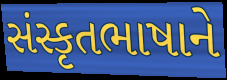
સંસ્કૃતભાષાને